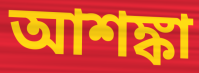
আশঙ্কা